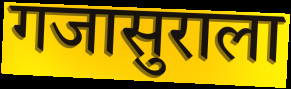
गजासुराला